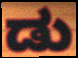
ಡು